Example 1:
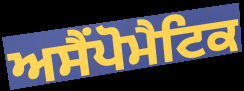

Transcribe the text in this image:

ਅਸੈਂਪੋਮੈਟਿਕ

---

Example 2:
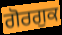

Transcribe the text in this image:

ਗੋਰਗੁਕ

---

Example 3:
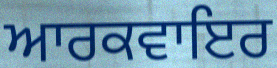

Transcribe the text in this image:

ਆਰਕਵਾਇਰ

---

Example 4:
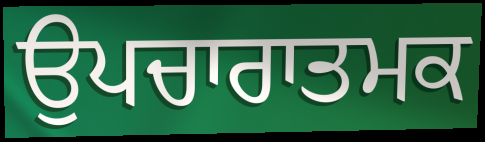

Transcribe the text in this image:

ਉਪਚਾਰਾਤਮਕ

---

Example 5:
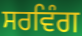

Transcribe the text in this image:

ਸਰਵਿੰਗ